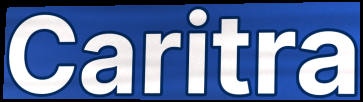
Caritra